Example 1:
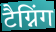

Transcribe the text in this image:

टैग्निंग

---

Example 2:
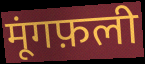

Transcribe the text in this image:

मूंगफ़ली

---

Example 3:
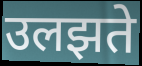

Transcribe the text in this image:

उलझते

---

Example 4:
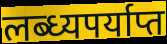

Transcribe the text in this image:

लब्ध्यपर्याप्त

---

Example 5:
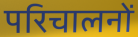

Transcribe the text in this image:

परिचालनों